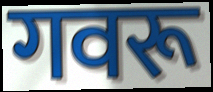
गवरू